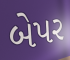
બેપર